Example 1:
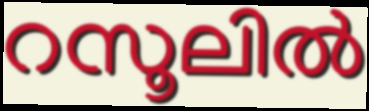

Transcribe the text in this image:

റസൂലിൽ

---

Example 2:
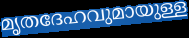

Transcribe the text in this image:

മൃതദേഹവുമായുള്ള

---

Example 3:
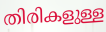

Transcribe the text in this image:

തിരികളുള്ള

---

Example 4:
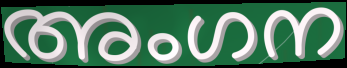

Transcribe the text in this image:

അംഗന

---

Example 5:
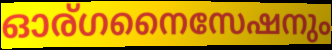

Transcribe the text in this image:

ഓര്ഗനൈസേഷനും